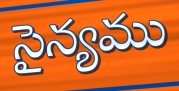
సైన్యము